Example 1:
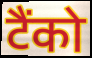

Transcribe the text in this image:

टैंको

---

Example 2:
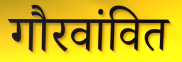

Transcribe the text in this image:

गौरवांवित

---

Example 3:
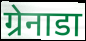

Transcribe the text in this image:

ग्रेनाडा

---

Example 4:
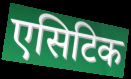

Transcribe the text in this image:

एसिटिक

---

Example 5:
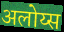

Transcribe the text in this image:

अलोय्स